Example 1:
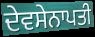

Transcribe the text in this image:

ਦੇਵਸੇਨਾਪਤੀ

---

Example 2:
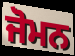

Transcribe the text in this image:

ਜੋਮਨ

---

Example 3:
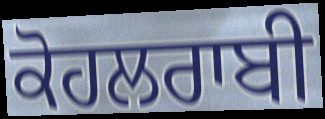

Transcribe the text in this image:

ਕੋਹਲਰਾਬੀ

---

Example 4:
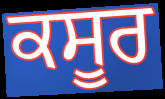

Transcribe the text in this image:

ਕਸੂਰ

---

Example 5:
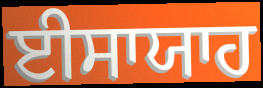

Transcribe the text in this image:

ਈਸਾਯਾਹ